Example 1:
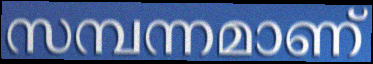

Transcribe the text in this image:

സമ്പന്നമാണ്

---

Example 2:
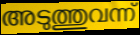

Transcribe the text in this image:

അടുത്തുവന്ന്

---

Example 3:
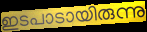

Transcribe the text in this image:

ഇടപാടായിരുന്നു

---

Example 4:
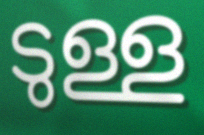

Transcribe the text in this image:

ടുള്ള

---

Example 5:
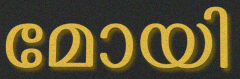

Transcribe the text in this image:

മോയി